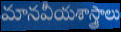
మానవీయశాస్త్రాలు